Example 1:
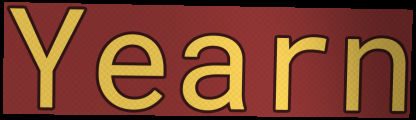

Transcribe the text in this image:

Yearn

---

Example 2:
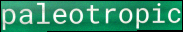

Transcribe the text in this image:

paleotropic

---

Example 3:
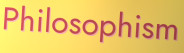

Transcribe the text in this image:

Philosophism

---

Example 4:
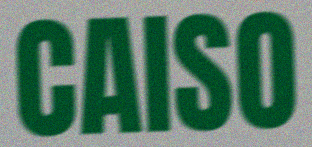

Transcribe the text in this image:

CAISO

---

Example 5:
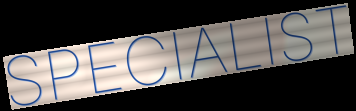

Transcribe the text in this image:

SPECIALIST